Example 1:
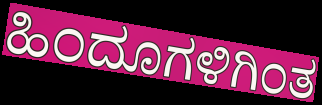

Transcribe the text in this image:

ಹಿಂದೂಗಳಿಗಿಂತ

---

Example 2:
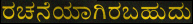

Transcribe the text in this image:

ರಚನೆಯಾಗಿರಬಹುದು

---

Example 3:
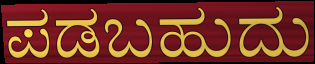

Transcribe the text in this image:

ಪಡಬಹುದು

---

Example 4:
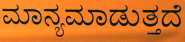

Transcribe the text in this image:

ಮಾನ್ಯಮಾಡುತ್ತದೆ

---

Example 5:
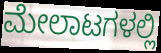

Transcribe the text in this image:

ಮೇಲಾಟಗಳಲ್ಲಿ